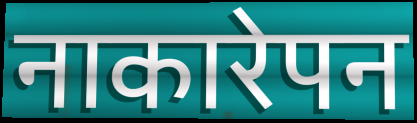
नाकारेपन